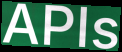
APIs